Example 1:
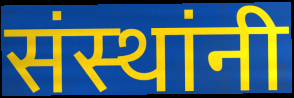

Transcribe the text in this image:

संस्थांनी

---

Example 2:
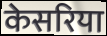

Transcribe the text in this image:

केसरिया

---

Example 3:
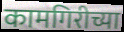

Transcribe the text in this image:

कामगिरीच्या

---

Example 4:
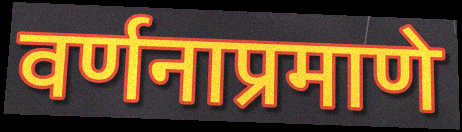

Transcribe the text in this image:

वर्णनाप्रमाणे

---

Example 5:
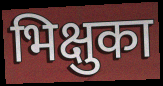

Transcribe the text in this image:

भिक्षुका